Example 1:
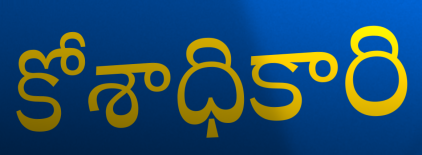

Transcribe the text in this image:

కోశాధికారి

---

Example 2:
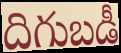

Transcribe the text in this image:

దిగుబడీ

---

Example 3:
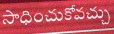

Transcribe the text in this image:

సాధించుకోవచ్చు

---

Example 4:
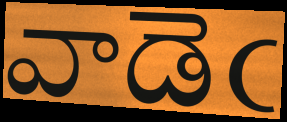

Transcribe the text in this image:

వాడెఁ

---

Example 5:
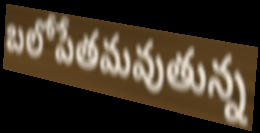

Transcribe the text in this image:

బలోపేతమవుతున్న